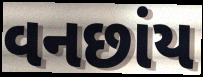
વનછાંય